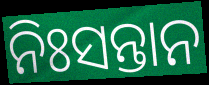
ନିଃସନ୍ତାନ